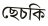
ছেচকি